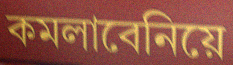
কমলাবেনিয়ে